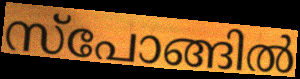
സ്പോങ്ങിൽ